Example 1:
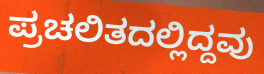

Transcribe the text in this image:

ಪ್ರಚಲಿತದಲ್ಲಿದ್ದವು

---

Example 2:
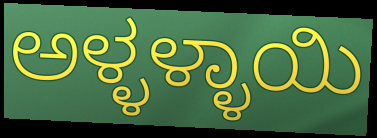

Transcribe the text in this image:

ಅಳ್ಳಳ್ಳಾಯಿ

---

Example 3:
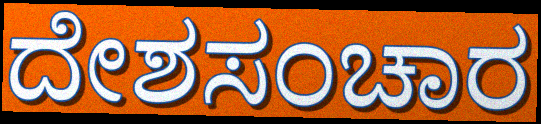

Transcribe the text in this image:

ದೇಶಸಂಚಾರ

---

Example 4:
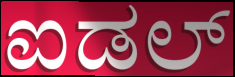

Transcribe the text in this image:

ಐಡಲ್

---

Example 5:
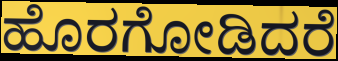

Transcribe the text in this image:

ಹೊರಗೋಡಿದರೆ